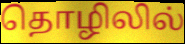
தொழிலில்